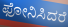
ಫೋನಿಸಿದರೆ